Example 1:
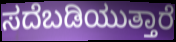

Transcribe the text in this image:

ಸದೆಬಡಿಯುತ್ತಾರೆ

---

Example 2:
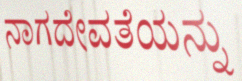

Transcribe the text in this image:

ನಾಗದೇವತೆಯನ್ನು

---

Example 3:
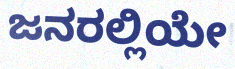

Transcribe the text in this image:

ಜನರಲ್ಲಿಯೇ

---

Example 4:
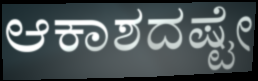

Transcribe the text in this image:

ಆಕಾಶದಷ್ಟೇ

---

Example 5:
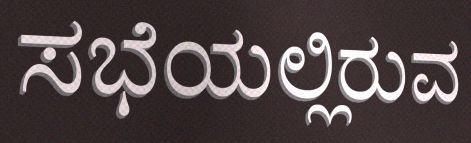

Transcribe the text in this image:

ಸಭೆಯಲ್ಲಿರುವ